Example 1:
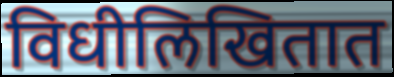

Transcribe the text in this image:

विधीलिखितात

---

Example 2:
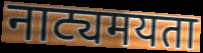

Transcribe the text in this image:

नाट्यमयता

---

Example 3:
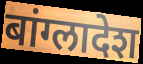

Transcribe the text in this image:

बांग्लादेश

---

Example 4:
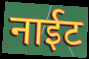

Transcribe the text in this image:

नाईट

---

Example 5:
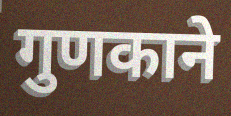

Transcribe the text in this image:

गुणकाने